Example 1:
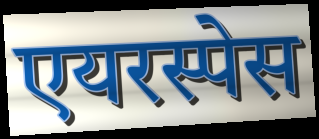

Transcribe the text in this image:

एयरस्पेस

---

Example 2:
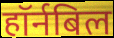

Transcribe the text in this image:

हॉर्नबिल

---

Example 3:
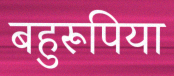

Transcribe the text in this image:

बहुरूपिया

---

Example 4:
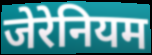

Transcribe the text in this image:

जेरेनियम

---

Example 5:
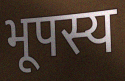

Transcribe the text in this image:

भूपस्य